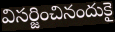
విసర్జించినందుకై